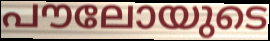
പൗലോയുടെ